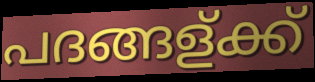
പദങ്ങള്ക്ക്